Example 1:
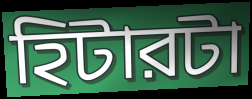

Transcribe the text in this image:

হিটারটা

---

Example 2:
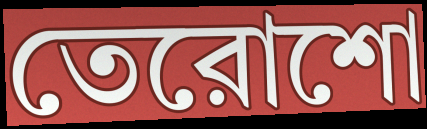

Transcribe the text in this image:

তেরোশো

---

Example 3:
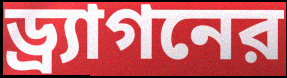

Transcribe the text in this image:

ড্র্যাগনের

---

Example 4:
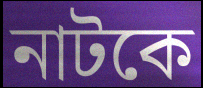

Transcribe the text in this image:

নাটকে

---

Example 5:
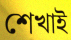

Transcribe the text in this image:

শেখাই